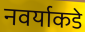
नवर्याकडे